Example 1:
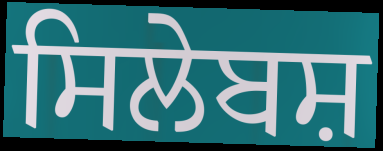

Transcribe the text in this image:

ਸਿਲੇਬਸ਼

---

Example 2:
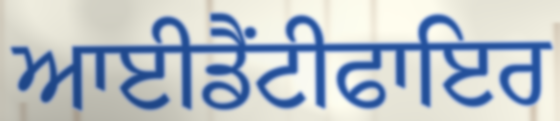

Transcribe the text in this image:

ਆਈਡੈਂਟੀਫਾਇਰ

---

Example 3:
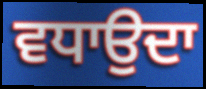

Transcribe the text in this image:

ਵਧਾਉਦਾ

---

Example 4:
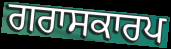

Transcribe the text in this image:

ਗਰਾਸਕਾਰਪ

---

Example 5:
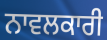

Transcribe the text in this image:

ਨਾਵਲਕਾਰੀ